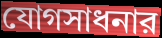
যোগসাধনার